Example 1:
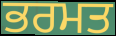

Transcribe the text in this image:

ਭਰਮਤ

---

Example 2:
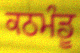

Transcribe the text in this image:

ਕਠਮੰਡੂ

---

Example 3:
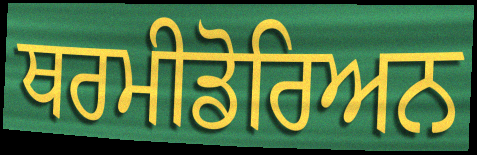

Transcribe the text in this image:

ਥਰਮੀਡੋਰਿਅਨ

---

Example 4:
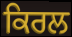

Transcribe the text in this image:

ਕਿਰਲ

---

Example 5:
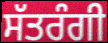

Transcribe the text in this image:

ਸੱਤਰੰਗੀ